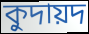
কুদায়দ